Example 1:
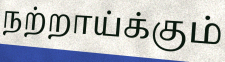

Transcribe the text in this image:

நற்றாய்க்கும்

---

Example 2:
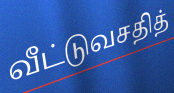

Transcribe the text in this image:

வீட்டுவசதித்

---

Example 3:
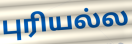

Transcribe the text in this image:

புரியல்ல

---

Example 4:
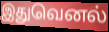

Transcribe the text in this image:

இதுவெனல்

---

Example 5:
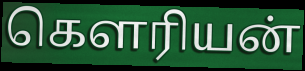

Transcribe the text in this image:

கௌரியன்